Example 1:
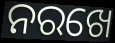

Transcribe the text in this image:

ନରଖେ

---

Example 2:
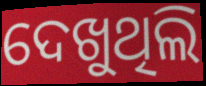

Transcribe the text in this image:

ଦେଖୁଥିଲି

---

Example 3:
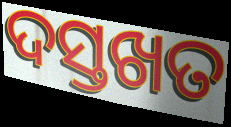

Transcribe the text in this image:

ଦସ୍ତଖତ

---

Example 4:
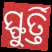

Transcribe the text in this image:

ସ୍ଫୁର୍ତ୍ତି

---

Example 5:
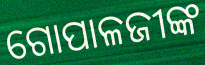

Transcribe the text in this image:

ଗୋପାଳଜୀଙ୍କ